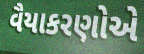
વૈયાકરણોએ